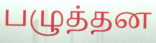
பழுத்தன